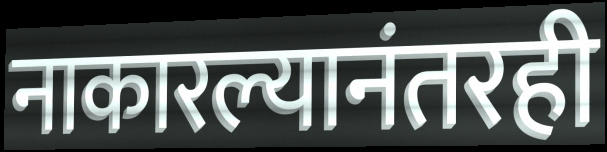
नाकारल्यानंतरही